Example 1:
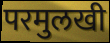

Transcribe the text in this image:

परमुलखी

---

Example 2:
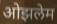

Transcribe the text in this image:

ओझलेम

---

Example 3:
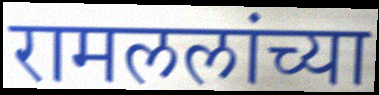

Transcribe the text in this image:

रामललांच्या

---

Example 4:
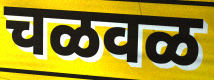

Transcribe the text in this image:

चळवळ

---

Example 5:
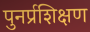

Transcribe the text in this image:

पुनर्प्रशिक्षण